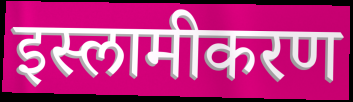
इस्लामीकरण